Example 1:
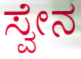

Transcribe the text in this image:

ಸ್ವೇನ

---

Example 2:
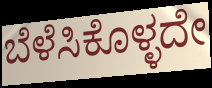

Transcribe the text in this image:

ಬೆಳೆಸಿಕೊಳ್ಳದೇ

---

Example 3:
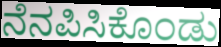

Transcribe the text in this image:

ನೆನಪಿಸಿಕೊಂಡು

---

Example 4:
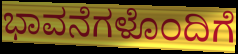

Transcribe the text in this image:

ಭಾವನೆಗಳೊಂದಿಗೆ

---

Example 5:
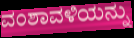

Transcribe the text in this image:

ವಂಶಾವಳಿಯನ್ನು